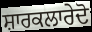
ਸ਼ਾਰਕਲਾਰੇਦੋ